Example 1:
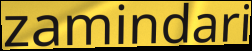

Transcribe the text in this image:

zamindari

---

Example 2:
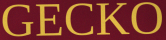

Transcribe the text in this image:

GECKO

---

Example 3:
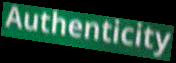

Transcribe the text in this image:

Authenticity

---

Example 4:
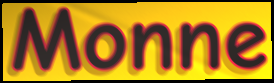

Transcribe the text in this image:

Monne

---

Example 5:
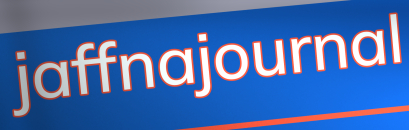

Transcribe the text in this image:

jaffnajournal